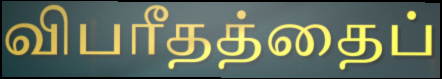
விபரீதத்தைப்